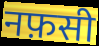
नफ़सी